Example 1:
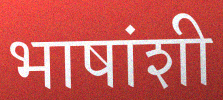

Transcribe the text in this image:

भाषांशी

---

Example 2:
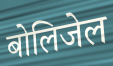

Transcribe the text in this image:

बोलिजेल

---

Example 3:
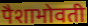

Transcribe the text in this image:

पैशाभोवती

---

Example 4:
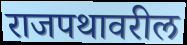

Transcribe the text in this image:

राजपथावरील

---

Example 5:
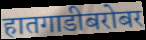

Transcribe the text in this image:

हातगाडीबरोबर